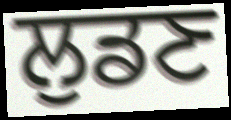
ਲੁਡਣ